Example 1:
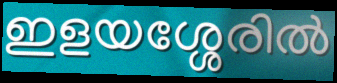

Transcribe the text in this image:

ഇളയശ്ശേരിൽ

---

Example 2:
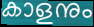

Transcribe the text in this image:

കാളനും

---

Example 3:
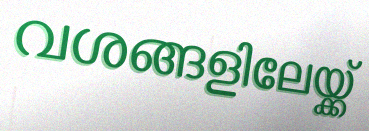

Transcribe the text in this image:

വശങ്ങളിലേയ്ക്ക്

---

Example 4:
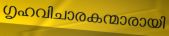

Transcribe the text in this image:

ഗൃഹവിചാരകന്മാരായി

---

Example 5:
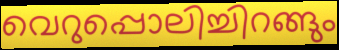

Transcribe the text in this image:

വെറുപ്പൊലിച്ചിറങ്ങും